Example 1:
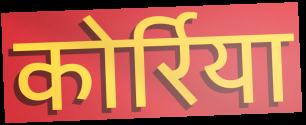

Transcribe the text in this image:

कोर्रिया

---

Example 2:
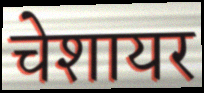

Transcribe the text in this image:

चेशायर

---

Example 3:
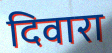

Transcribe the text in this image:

दिवारा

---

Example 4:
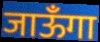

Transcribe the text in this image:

जाऊँगा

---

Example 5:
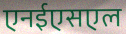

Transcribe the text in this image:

एनईएसएल